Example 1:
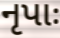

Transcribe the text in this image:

નૃપાઃ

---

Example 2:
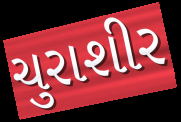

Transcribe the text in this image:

ચુરાશીર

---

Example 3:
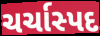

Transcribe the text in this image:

ચર્ચાસ્પદ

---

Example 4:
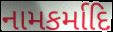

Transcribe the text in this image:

નામકર્માદિ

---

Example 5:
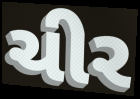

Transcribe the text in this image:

ચીર